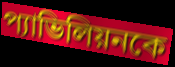
প্যাভিলিয়নকে